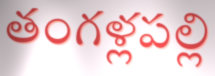
తంగళ్లపల్లి